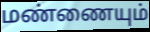
மண்ணையும்